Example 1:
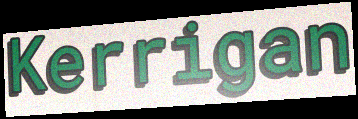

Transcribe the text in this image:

Kerrigan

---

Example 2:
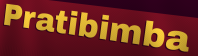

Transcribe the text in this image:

Pratibimba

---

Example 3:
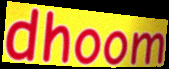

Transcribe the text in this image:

dhoom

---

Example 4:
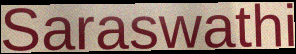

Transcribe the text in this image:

Saraswathi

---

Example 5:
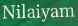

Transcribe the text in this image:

Nilaiyam